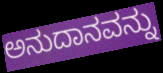
ಅನುದಾನವನ್ನು